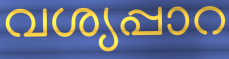
വശ്യപ്പാറ